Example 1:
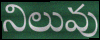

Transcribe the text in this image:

నిలువు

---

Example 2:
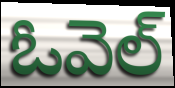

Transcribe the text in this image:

ఓవెల్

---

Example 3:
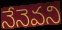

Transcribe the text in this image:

నేనెవని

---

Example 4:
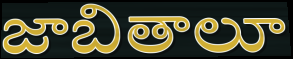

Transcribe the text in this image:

జాబితాలూ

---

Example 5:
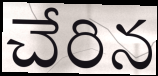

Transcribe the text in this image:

చేరిన